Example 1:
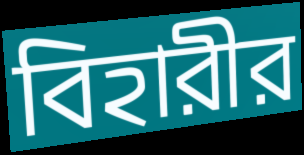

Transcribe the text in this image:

বিহারীর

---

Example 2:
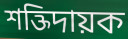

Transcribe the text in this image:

শক্তিদায়ক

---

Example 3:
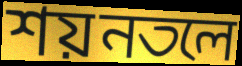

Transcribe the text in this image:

শয়নতলে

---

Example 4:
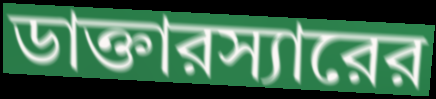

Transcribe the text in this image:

ডাক্তারস্যারের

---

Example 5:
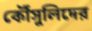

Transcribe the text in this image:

কৌঁসুলিদের